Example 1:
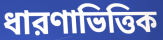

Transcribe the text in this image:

ধারণাভিত্তিক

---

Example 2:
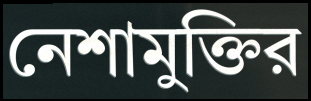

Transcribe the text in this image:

নেশামুক্তির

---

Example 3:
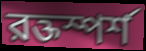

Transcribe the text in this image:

রক্তস্পর্শ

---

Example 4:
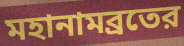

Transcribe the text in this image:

মহানামব্রতের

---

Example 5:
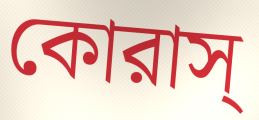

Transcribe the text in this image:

কোরাস্